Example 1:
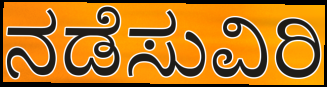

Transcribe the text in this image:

ನಡೆಸುವಿರಿ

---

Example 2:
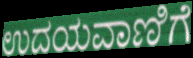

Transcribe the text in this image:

ಉದಯವಾಣಿಗೆ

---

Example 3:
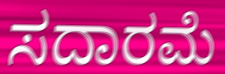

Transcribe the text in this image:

ಸದಾರಮೆ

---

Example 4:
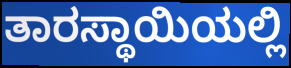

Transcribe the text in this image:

ತಾರಸ್ಥಾಯಿಯಲ್ಲಿ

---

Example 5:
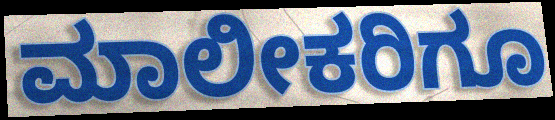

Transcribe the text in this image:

ಮಾಲೀಕರಿಗೂ